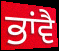
ਭਾਂਵੈ